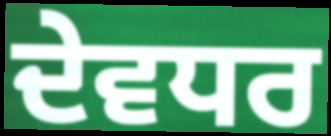
ਦੇਵਧਰ